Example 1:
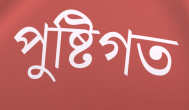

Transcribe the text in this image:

পুষ্টিগত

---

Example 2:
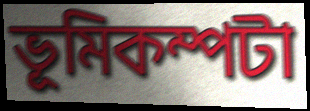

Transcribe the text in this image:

ভূমিকম্পটা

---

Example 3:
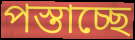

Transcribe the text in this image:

পস্তাচ্ছে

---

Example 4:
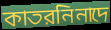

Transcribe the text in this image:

কাতরনিনাদে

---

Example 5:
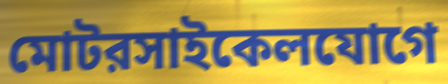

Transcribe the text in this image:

মোটরসাইকেলযোগে